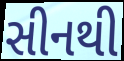
સીનથી